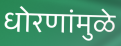
धोरणांमुळे